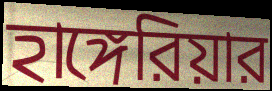
হাঙ্গেরিয়ার